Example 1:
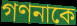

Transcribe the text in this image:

গণনাকে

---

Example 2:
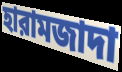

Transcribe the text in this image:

হারামজাদা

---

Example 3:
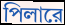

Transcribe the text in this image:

পিলারে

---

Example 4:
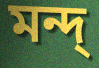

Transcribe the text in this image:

মন্দ্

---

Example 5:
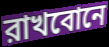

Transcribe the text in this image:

রাখবোনে